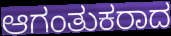
ಆಗಂತುಕರಾದ